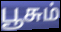
பூசும்